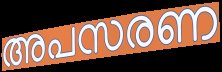
അപസരണ